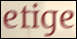
etige